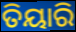
ତିୟାରି